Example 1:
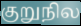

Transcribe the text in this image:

குறுநில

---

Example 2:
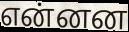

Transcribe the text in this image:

என்னன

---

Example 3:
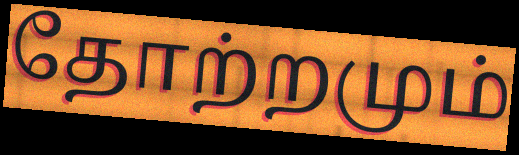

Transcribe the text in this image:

தோற்றமும்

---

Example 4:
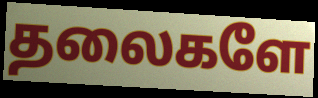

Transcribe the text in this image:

தலைகளே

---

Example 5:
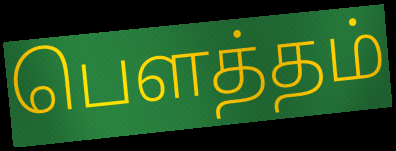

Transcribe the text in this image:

பௌத்தம்